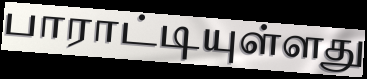
பாராட்டியுள்ளது